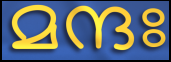
മന്ദഃ